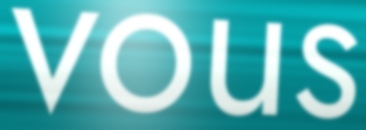
vous